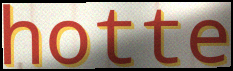
hotte